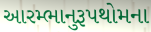
આરમ્ભાનુરૂપથોમના